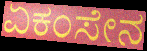
ಏಕಂಸೇನ